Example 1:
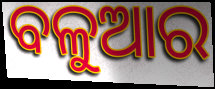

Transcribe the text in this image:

ବଳୁଆର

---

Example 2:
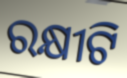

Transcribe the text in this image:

ରକ୍ଷୀଟି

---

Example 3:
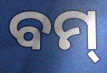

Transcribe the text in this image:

ବମ୍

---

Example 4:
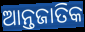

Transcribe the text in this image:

ଆନ୍ତଜାତିକ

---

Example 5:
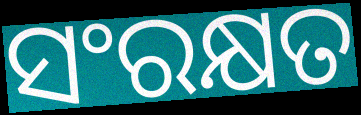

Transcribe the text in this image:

ସଂରକ୍ଷତ